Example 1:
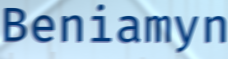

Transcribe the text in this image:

Beniamyn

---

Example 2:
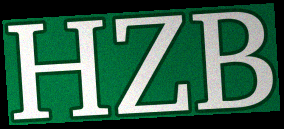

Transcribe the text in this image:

HZB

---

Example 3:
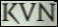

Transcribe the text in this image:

KVN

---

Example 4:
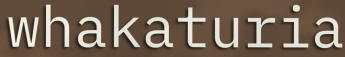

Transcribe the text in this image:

whakaturia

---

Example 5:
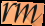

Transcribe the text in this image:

rm